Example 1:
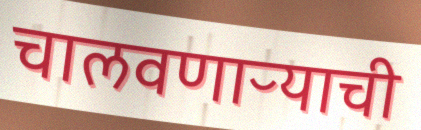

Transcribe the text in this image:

चालवणाऱ्याची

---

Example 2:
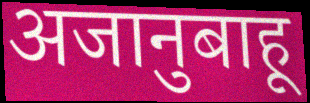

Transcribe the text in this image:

अजानुबाहू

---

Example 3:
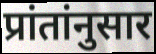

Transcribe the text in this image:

प्रांतांनुसार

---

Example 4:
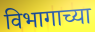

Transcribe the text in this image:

विभागाच्या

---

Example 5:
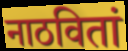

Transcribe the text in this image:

नाठवितां